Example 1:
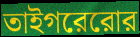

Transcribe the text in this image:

তাইগরেরোর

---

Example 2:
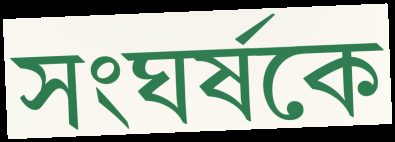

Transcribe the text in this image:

সংঘর্ষকে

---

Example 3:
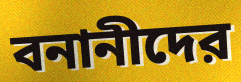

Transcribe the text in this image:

বনানীদের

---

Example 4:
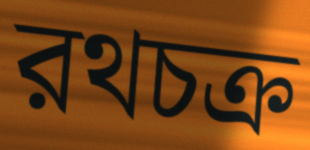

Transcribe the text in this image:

রথচক্র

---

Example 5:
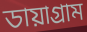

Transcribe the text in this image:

ডায়াগ্রাম